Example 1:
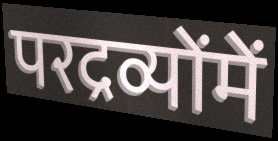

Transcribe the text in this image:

परद्रव्योंमें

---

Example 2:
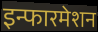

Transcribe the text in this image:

इन्फारमेशन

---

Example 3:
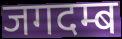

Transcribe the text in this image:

जगदम्ब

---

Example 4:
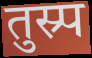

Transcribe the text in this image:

तुस्र्प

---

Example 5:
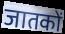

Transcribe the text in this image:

जातकों